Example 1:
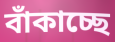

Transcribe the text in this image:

বাঁকাচ্ছে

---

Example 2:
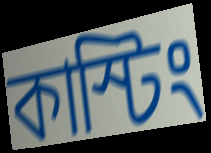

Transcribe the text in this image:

কাস্টিং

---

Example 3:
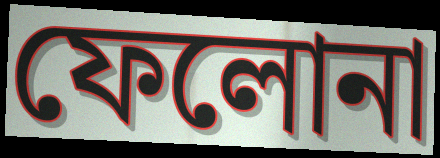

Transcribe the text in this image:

ফেলোনা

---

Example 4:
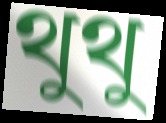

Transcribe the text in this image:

থুথু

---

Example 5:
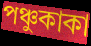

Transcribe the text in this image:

পঞ্চুকাকা